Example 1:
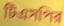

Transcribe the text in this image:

টিএসপির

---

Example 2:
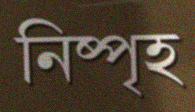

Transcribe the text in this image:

নিষ্পৃহ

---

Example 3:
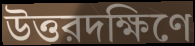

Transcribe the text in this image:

উত্তরদক্ষিণে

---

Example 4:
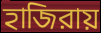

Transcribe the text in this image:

হাজিরায়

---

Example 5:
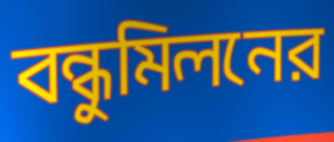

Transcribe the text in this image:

বন্ধুমিলনের